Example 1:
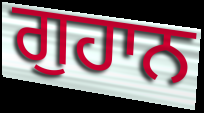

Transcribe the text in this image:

ਗੁਹਾਨ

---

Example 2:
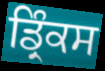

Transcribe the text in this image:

ਡ੍ਰਿੰਕਸ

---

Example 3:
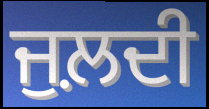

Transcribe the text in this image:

ਜੁਲ਼ਦੀ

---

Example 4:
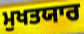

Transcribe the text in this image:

ਮੁਖਤਯਾਰ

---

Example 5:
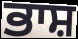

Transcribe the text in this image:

ਭਾਸ਼